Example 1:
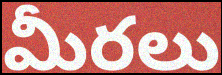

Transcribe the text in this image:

మీరలు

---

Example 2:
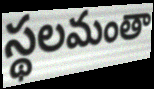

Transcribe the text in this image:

స్థలమంతా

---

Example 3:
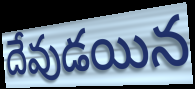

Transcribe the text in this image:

దేవుడయిన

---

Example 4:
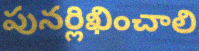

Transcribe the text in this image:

పునర్లిఖించాలి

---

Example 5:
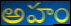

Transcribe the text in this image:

అహం